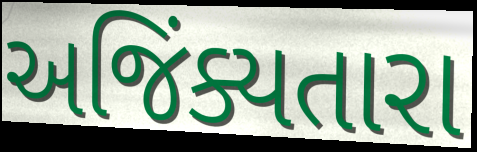
અજિંક્યતારા